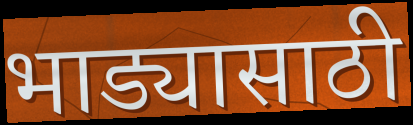
भाड्यासाठी